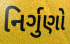
નિર્ગુણો